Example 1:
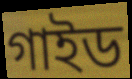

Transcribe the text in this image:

গাইড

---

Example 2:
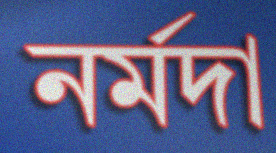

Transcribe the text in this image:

নৰ্মদা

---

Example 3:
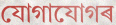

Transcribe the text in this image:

যোগাযোগৰ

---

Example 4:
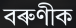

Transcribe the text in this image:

বৰুণীক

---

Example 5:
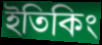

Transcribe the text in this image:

ইতিকিং